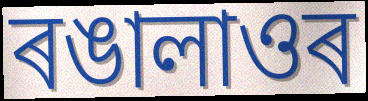
ৰঙালাওৰ